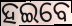
ହଇବେ